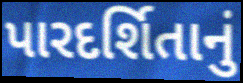
પારદર્શિતાનું